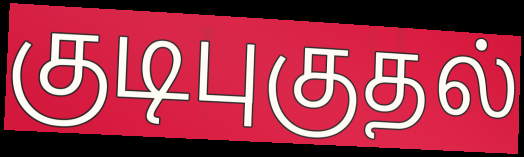
குடிபுகுதல்